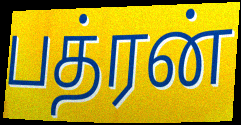
பத்ரன்